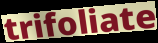
trifoliate